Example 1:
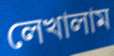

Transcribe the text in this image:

লেখালাম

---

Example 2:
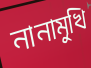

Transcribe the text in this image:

নানামুখি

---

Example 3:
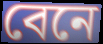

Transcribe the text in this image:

বেনে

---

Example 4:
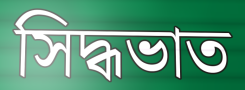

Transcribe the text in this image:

সিদ্ধভাত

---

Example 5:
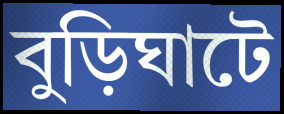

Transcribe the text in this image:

বুড়িঘাটে